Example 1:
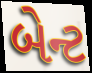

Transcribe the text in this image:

બેન્ટ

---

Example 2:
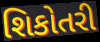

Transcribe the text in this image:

શિકોતરી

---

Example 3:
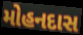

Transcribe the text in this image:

મોહનદાસ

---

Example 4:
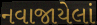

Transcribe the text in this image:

નવાજાયેલાં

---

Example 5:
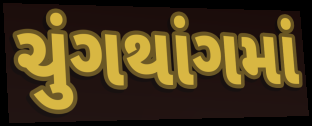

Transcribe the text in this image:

ચુંગથાંગમાં